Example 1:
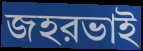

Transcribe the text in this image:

জহরভাই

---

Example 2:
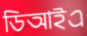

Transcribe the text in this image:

ডিআইএ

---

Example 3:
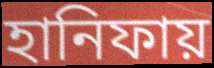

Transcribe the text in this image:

হানিফায়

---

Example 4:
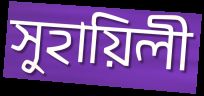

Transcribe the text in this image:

সুহায়িলী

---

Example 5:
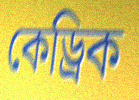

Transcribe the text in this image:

কেড্রিক